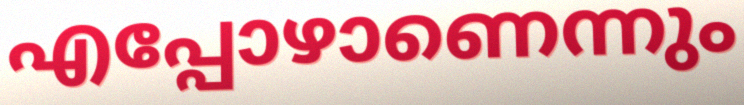
എപ്പോഴാണെന്നും